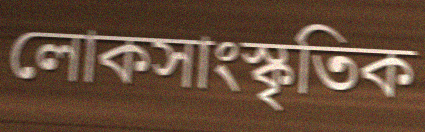
লোকসাংস্কৃতিক